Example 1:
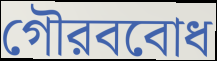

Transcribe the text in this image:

গৌরববোধ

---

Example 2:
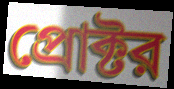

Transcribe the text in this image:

প্রোক্টর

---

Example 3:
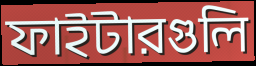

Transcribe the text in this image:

ফাইটারগুলি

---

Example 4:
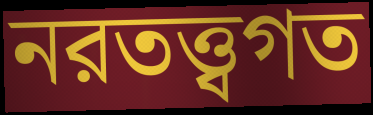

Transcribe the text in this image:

নরতত্ত্বগত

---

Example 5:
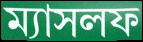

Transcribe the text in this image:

ম্যাসলফ